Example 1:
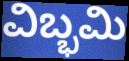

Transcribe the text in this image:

ವಿಬ್ಭಮಿ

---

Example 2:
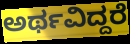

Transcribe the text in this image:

ಅರ್ಥವಿದ್ದರೆ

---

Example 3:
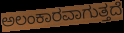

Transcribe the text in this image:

ಅಲಂಕಾರವಾಗುತ್ತದೆ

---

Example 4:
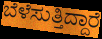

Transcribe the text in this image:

ಬೆಳೆಸುತ್ತಿದ್ದಾರೆ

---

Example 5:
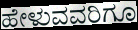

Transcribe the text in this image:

ಹೇಳುವವರಿಗೂ